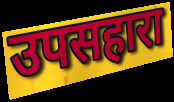
उपसहारा